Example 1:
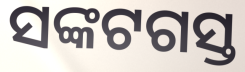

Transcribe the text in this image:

ସଙ୍କଟଗସ୍ତ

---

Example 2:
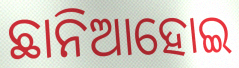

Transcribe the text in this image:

ଛାନିଆହୋଇ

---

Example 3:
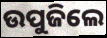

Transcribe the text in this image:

ଉପୁଜିଲେ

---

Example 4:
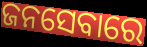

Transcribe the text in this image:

ଜନସେବାରେ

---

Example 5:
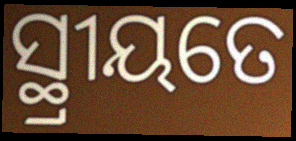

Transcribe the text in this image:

ସ୍ଥ୍ରୀୟତେ